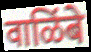
वाळिंबे